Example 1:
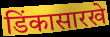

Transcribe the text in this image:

डिंकासारखे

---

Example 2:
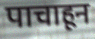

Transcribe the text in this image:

पाचाहून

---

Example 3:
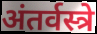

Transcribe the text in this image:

अंतर्वस्त्रे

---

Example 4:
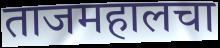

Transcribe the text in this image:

ताजमहालचा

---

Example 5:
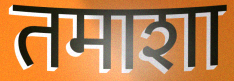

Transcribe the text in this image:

तमाशा